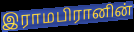
இராமபிரானின்